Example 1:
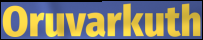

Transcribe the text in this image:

Oruvarkuth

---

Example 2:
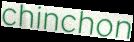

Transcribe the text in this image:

chinchon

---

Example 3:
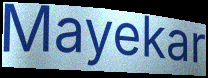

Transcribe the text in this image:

Mayekar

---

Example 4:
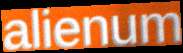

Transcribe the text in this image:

alienum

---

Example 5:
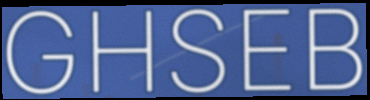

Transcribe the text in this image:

GHSEB